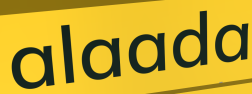
alaada